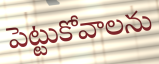
పెట్టుకోవాలను